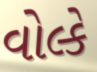
વોલ્કે